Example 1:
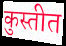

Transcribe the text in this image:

कुस्तीत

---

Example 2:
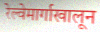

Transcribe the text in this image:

रेल्वेमार्गाखालून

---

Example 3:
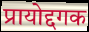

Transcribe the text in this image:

प्रायोद्दगक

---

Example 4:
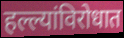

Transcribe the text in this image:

हल्ल्यांविरोधात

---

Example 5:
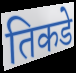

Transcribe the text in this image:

तिकडे